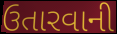
ઉતારવાની